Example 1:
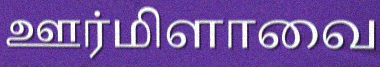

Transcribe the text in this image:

ஊர்மிளாவை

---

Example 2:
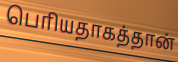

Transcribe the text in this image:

பெரியதாகத்தான்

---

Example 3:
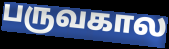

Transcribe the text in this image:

பருவகால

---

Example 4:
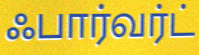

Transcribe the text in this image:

ஃபார்வர்ட்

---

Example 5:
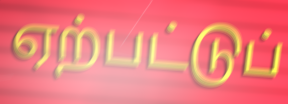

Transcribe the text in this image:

ஏற்பட்டுப்